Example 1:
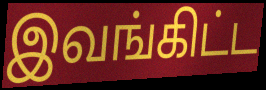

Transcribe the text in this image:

இவங்கிட்ட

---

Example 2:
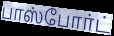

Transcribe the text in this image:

பாஸ்போர்ட்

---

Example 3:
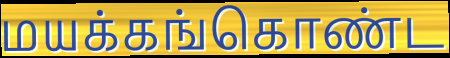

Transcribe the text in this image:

மயக்கங்கொண்ட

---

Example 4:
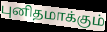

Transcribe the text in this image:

புனிதமாக்கும்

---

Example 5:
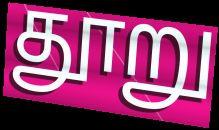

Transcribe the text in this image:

தூறு